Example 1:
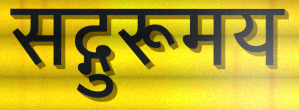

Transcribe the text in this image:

सद्गुरूमय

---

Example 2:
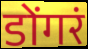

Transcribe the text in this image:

डोंगरं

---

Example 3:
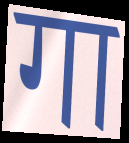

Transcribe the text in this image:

गा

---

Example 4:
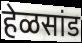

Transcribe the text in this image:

हेळसांड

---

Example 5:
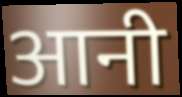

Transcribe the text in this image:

आनी